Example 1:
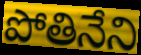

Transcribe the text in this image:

పోతినేని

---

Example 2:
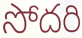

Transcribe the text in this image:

సోదరి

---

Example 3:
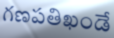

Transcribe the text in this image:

గణపతిఖండే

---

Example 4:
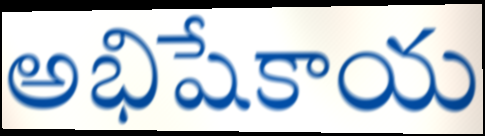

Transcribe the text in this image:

అభిషేకాయ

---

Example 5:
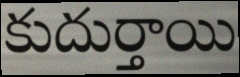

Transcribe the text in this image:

కుదుర్తాయి